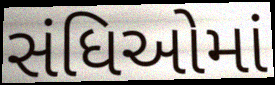
સંધિઓમાં